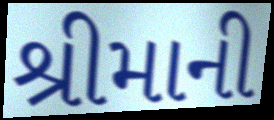
શ્રીમાની